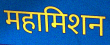
महामिशन